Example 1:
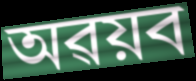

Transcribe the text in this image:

অৱয়ব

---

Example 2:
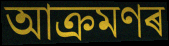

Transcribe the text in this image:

আক্ৰমণৰ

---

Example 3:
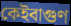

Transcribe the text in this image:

কেইবাগুণ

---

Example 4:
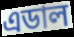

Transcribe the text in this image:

এডাল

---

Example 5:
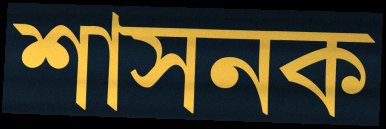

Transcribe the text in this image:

শাসনক